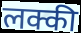
लक्की